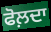
ਫੋਲ਼ਦਾ